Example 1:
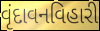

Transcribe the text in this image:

વૃંદાવનવિહારી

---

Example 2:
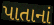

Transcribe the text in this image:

પાતાનાં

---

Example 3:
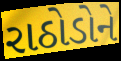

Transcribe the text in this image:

રાઠોડોને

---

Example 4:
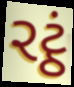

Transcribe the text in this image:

રટ્ઠં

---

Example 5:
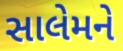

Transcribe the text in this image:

સાલેમને